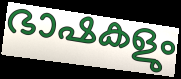
ഭാഷകളും